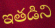
ఇతడిని